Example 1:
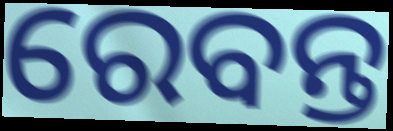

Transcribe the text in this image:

ରେବନ୍ତ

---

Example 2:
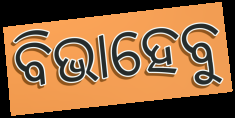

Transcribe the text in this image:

ବିଭାହେବୁ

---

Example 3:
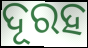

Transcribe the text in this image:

ଦୂରହ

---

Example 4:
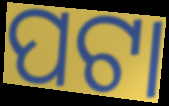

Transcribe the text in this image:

ପଟା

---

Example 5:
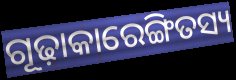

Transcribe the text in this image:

ଗୂଢ଼ାକାରେଙ୍ଗିତସ୍ୟ